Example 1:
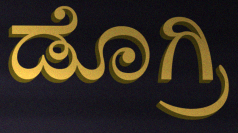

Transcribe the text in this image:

ಡೊಗ್ರಿ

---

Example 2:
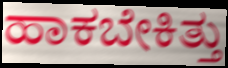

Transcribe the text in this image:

ಹಾಕಬೇಕಿತ್ತು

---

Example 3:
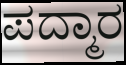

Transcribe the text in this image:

ಪದ್ಮಾರ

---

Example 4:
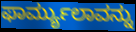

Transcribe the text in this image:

ಫಾರ್ಮ್ಯುಲಾವನ್ನು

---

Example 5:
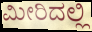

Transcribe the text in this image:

ಮೀರಿದಲ್ಲಿ